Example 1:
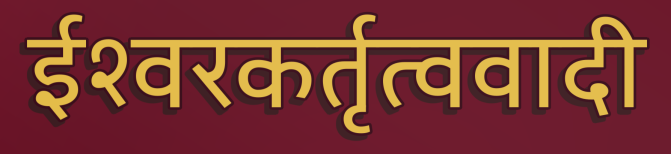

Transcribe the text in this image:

ईश्वरकर्तृत्ववादी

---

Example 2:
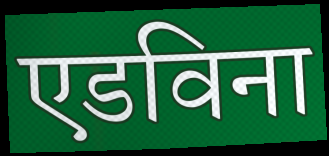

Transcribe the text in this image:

एडविना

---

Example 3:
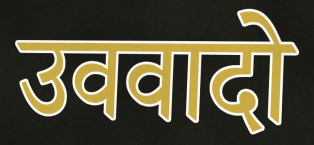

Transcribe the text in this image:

उववादो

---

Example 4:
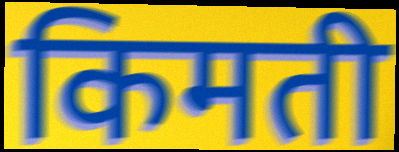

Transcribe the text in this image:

किमती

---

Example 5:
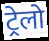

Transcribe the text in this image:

ट्रेलो